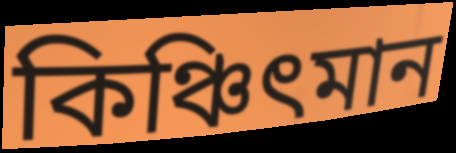
কিঞ্চিৎমান